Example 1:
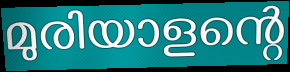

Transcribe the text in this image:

മുരിയാളന്റെ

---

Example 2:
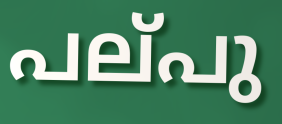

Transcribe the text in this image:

പല്‌പു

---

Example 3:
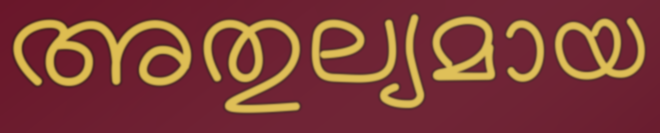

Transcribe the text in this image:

അതുല്യമായ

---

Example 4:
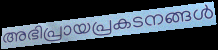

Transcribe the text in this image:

അഭിപ്രായപ്രകടനങ്ങൾ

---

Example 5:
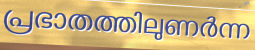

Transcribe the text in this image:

പ്രഭാതത്തിലുണർന്ന